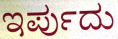
ಇರ್ಪುದು